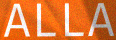
ALLA